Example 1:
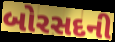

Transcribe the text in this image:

બોરસદની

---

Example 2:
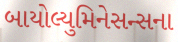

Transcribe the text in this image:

બાયોલ્યુમિનેસન્સના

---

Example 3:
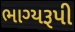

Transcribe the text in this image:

ભાગ્યરૂપી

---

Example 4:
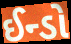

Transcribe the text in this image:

ઈન્ડો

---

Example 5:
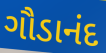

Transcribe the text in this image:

ગૌડાનંદ